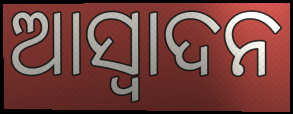
ଆସ୍ଵାଦନ